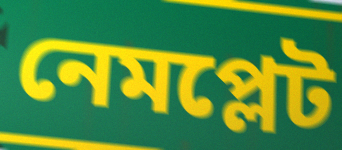
নেমপ্লেট